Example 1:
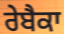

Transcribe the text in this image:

ਰੇਬੈਕਾ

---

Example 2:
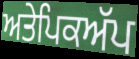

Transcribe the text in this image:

ਅਤੇਪਿਕਅੱਪ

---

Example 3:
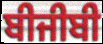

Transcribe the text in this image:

ਬੀਜੀਬੀ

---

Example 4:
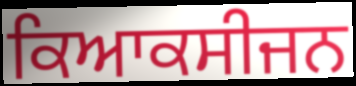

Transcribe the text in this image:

ਕਿਆਕਸੀਜਨ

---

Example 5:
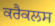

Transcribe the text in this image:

ਕਰੈਕਲਸ